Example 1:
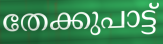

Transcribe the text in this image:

തേക്കുപാട്ട്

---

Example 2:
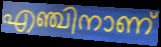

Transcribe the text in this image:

എഞ്ചിനാണ്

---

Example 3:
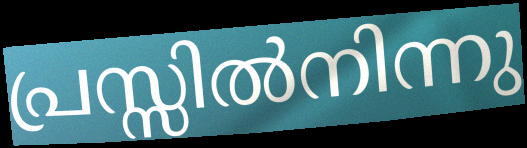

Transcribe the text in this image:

പ്രസ്സിൽനിന്നു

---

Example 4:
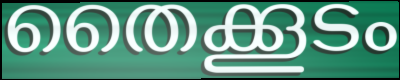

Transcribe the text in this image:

തൈക്കൂടം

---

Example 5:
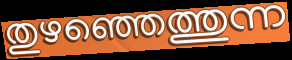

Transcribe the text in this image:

തുഴഞ്ഞെത്തുന്ന